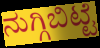
ನುಗ್ಗಿಬಿಟ್ಟೆ